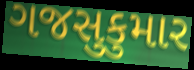
ગજસુકુમાર